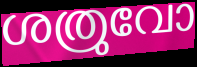
ശത്രുവോ